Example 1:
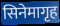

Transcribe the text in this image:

सिनेमागृह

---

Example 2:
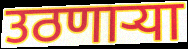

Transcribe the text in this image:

उठणाऱ्या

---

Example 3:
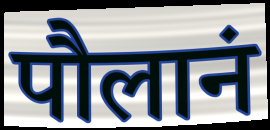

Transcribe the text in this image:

पौलानं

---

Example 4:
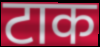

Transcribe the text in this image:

टाक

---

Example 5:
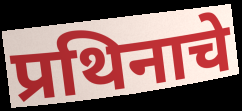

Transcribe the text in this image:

प्रथिनाचे